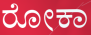
ರೋಕಾ